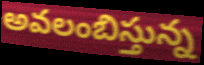
అవలంబిస్తున్న